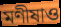
মণীষাও